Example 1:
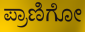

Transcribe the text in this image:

ಪ್ರಾಣಿಗೋ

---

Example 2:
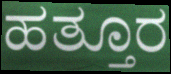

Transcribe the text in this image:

ಹತ್ತೂರ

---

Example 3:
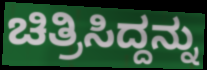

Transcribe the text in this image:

ಚಿತ್ರಿಸಿದ್ದನ್ನು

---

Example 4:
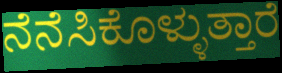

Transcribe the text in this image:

ನೆನೆಸಿಕೊಳ್ಳುತ್ತಾರೆ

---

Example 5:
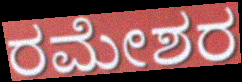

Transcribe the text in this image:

ರಮೇಶರ